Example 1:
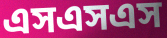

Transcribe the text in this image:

এসএসএস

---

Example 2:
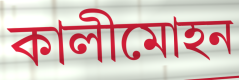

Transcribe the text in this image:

কালীমোহন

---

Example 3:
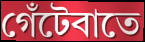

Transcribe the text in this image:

গেঁটেবাতে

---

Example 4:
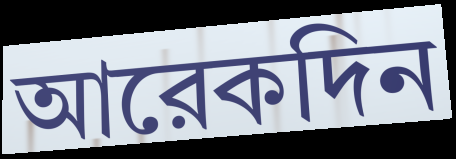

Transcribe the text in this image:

আরেকদিন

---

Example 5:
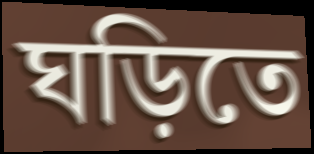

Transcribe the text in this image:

ঘড়িতে